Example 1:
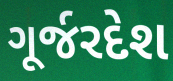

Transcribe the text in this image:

ગૂર્જરદેશ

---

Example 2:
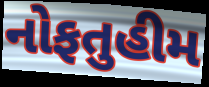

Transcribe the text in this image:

નોફતુહીમ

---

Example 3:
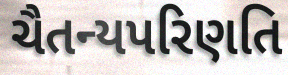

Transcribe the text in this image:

ચૈતન્યપરિણતિ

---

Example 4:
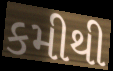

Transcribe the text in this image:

કમીથી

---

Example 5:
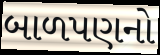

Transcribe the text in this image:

બાળપણનો